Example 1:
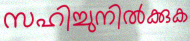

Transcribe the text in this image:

സഹിച്ചുനിൽക്കുക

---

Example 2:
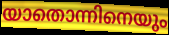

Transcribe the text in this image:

യാതൊന്നിനെയും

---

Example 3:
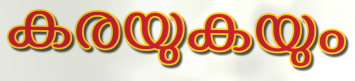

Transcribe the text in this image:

കരയുകയും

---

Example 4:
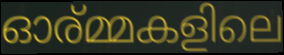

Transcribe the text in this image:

ഓര്മ്മകളിലെ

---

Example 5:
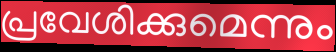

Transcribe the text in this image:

പ്രവേശിക്കുമെന്നും